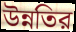
উন্নতির